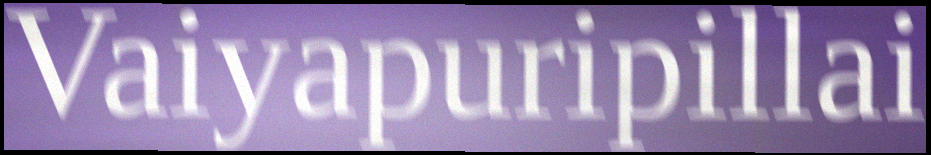
Vaiyapuripillai